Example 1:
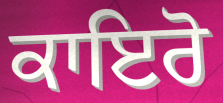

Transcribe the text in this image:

ਕਾਇਰੋ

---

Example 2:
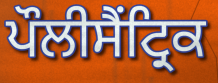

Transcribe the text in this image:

ਪੌਲੀਸੈਂਟ੍ਰਿਕ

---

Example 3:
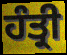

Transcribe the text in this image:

ਹੰਤ੍ਰੀ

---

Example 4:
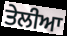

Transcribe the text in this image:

ਤੇਲੀਆ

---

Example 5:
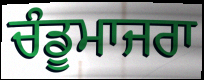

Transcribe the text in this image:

ਚੰਡੂਮਾਜਰਾ